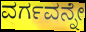
ವರ್ಗವನ್ನೇ